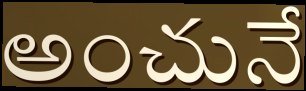
అంచునే